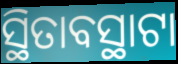
ସ୍ଥିତାବସ୍ଥାଟା